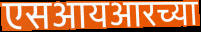
एसआयआरच्या